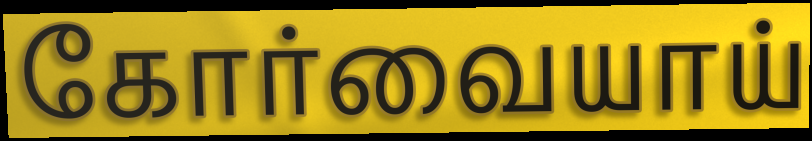
கோர்வையாய்